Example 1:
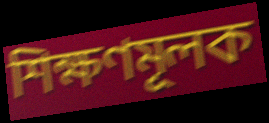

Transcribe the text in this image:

শিক্ষণমূলক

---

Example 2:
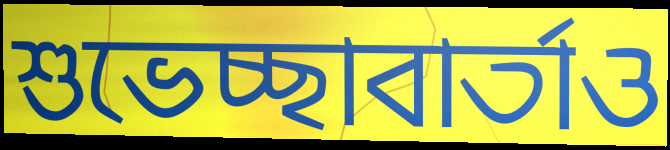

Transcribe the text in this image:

শুভেচ্ছাবার্তাও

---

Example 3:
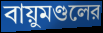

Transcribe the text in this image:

বায়ুমণ্ডলের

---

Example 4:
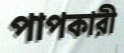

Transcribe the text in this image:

পাপকারী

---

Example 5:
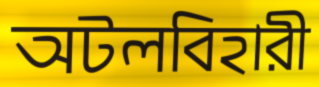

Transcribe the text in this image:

অটলবিহারী